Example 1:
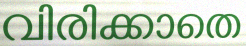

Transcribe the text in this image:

വിരിക്കാതെ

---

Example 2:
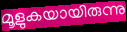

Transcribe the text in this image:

മൂളുകയായിരുന്നു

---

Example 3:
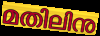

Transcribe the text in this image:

മതിലിനു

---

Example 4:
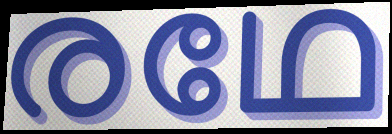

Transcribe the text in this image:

രഥേ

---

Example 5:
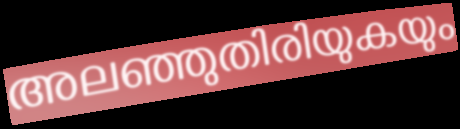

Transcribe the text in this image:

അലഞ്ഞുതിരിയുകയും